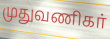
முதுவணிகர்